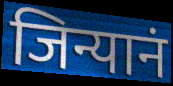
जिन्यानं